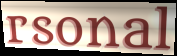
rsonal